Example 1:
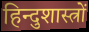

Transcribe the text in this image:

हिन्दुशास्त्रों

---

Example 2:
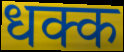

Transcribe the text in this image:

धक्क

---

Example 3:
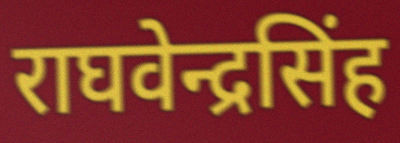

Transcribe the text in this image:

राघवेन्द्रसिंह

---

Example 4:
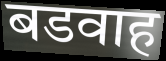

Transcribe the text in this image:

बडवाह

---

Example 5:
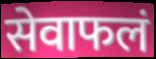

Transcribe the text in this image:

सेवाफलं